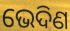
ଭେଦିଣ